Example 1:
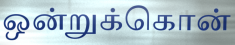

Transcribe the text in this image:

ஒன்றுக்கொன்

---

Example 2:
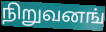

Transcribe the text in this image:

நிறுவனங்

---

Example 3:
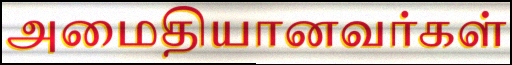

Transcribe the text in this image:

அமைதியானவர்கள்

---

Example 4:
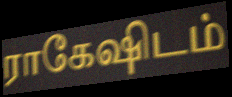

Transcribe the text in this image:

ராகேஷிடம்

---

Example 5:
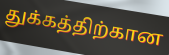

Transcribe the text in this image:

துக்கத்திற்கான